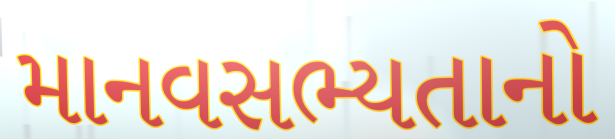
માનવસભ્યતાનો